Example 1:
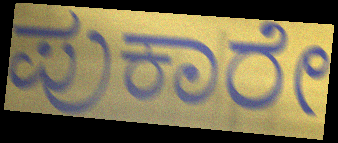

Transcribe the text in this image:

ಪುಕಾರೇ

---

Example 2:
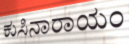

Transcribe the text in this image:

ಕುಸಿನಾರಾಯಂ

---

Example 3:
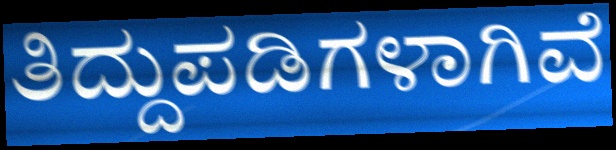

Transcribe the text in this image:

ತಿದ್ದುಪಡಿಗಳಾಗಿವೆ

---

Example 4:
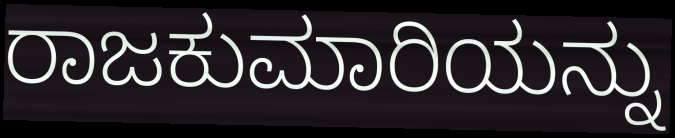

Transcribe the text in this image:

ರಾಜಕುಮಾರಿಯನ್ನು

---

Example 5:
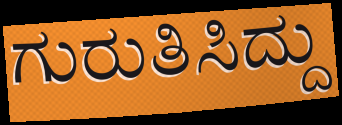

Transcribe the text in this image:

ಗುರುತಿಸಿದ್ದು